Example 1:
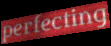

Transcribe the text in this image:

perfecting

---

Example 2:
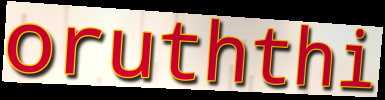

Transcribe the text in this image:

oruththi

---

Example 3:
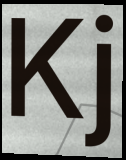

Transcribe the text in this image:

Kj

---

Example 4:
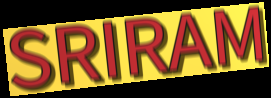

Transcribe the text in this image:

SRIRAM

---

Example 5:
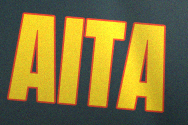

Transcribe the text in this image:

AITA